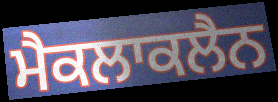
ਮੈਕਲਾਕਲੈਨ